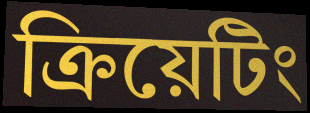
ক্রিয়েটিং